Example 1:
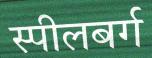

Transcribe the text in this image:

स्पीलबर्ग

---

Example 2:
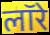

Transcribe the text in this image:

लॉरे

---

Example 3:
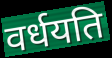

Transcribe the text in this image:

वर्धयति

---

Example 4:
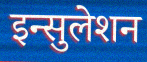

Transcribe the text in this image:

इन्सुलेशन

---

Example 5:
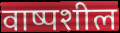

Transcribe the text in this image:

वाष्पशील